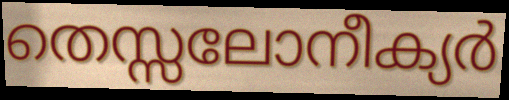
തെസ്സലോനീക്യർ